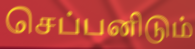
செப்பனிடும்